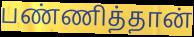
பண்ணித்தான்